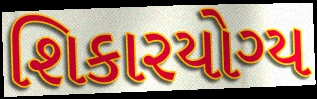
શિકારયોગ્ય